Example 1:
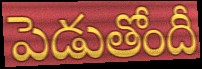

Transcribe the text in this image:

పెడుతోందీ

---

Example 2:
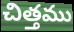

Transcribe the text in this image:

చిత్తము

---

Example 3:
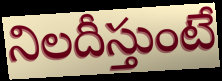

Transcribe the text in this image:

నిలదీస్తుంటే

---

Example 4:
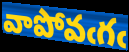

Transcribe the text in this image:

వాపోవఁగఁ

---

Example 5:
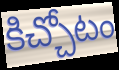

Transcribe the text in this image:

కిచ్చోటం